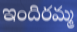
ఇందిరమ్మ